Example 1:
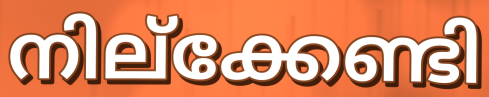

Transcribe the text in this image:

നില്ക്കേണ്ടി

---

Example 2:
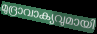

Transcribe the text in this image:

മുദ്രാവാക്യവുമായി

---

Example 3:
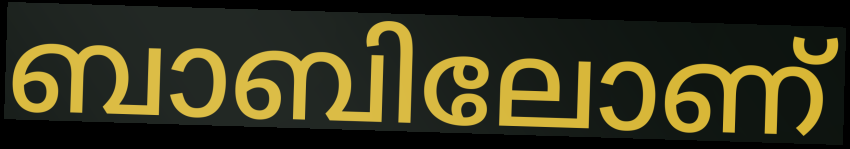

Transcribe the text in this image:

ബാബിലോണ്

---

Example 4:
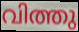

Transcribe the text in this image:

വിത്തു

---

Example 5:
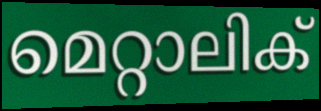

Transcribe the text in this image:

മെറ്റാലിക്